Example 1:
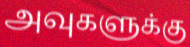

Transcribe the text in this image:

அவுகளுக்கு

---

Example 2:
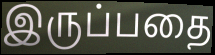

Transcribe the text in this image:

இருப்பதை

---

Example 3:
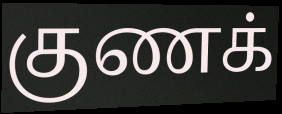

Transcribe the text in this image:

குணக்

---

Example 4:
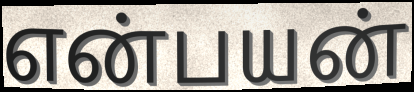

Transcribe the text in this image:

என்பயன்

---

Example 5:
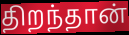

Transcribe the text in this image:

திறந்தான்